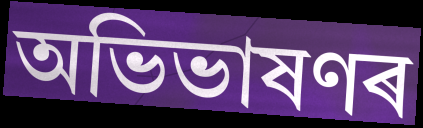
অভিভাষণৰ